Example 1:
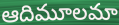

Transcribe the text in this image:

ఆదిమూలమా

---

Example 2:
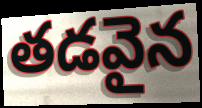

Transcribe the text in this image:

తడవైన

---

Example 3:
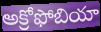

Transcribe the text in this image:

అక్రోఫోబియా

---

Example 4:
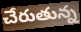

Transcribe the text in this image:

చేరుతున్న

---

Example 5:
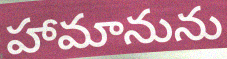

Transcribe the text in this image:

హామానును